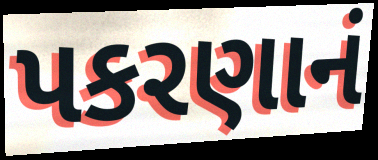
પકરણાનં